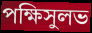
পক্ষিসুলভ